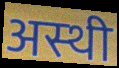
अस्थी